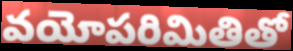
వయోపరిమితితో